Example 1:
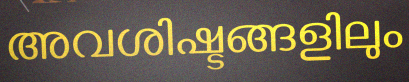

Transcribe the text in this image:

അവശിഷ്ടങ്ങളിലും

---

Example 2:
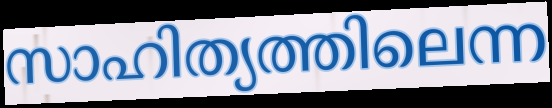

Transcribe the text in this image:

സാഹിത്യത്തിലെന്ന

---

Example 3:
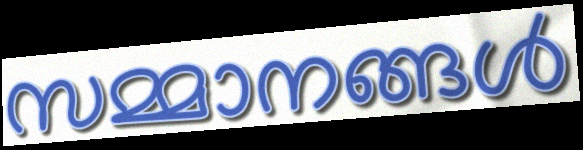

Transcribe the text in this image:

സമ്മാനങ്ങൾ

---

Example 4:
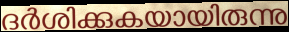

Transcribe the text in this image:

ദർശിക്കുകയായിരുന്നു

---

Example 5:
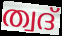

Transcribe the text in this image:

ത്വദ്